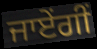
ਜਾਏਂਗੀਂ